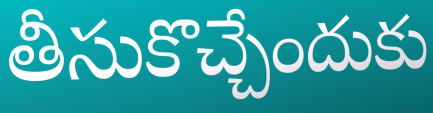
తీసుకొచ్చేందుకు